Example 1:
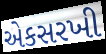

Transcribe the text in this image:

એકસરખી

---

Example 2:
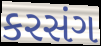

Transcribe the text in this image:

કરસંગ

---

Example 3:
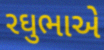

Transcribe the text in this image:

રઘુભાએ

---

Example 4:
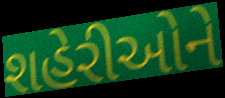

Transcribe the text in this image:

શહેરીઓને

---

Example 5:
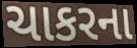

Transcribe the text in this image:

ચાકરના